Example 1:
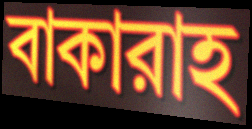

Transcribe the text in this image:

বাকারাহ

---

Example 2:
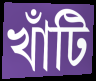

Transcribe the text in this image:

খাঁটি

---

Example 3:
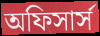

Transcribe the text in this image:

অফিসার্স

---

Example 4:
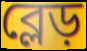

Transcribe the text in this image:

ব্লেড়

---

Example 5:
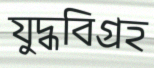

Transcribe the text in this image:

যুদ্ধবিগ্রহ